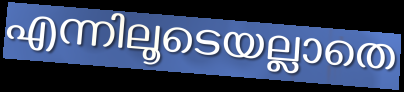
എന്നിലൂടെയല്ലാതെ